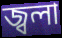
জ্বলা